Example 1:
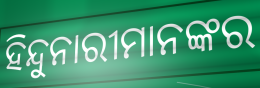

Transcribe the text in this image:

ହିନ୍ଦୁନାରୀମାନଙ୍କର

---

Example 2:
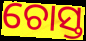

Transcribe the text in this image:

ଚୋସ୍ତ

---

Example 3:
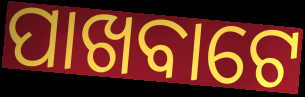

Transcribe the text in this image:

ପାଖବାଟେ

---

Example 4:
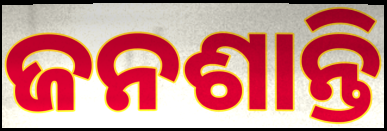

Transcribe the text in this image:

ଜନଶାନ୍ତି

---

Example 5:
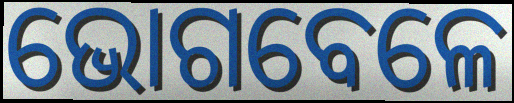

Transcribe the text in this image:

ଭୋଗବେଳେ